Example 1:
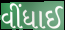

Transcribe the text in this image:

વીંધાઈ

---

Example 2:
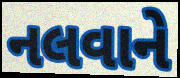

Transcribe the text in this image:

નલવાને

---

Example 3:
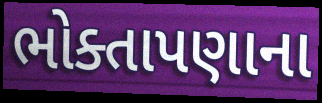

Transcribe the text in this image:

ભોક્તાપણાના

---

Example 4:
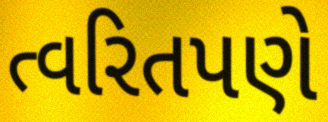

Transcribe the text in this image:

ત્વરિતપણે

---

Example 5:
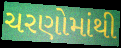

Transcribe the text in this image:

ચરણોમાંથી